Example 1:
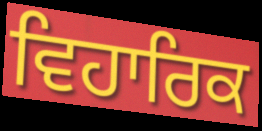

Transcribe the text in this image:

ਵਿਹਾਰਿਕ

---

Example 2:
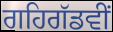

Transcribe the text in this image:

ਗਹਿਗੱਡਵੀਂ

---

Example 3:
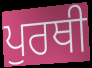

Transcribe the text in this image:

ਪੁਰਥੀ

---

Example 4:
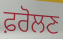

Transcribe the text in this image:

ਫ਼ਰੋਲਣ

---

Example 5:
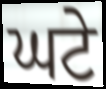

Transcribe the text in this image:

ਘਟੇ